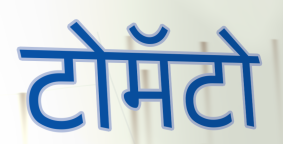
टोमॅटो